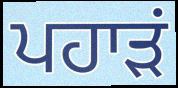
ਪਹਾੜਂ